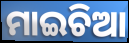
ମାଇଚିଆ